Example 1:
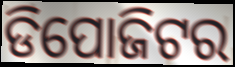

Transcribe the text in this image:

ଡିପୋଜିଟର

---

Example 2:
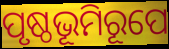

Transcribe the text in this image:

ପୃଷ୍ଠଭୂମିରୂପେ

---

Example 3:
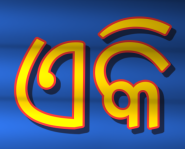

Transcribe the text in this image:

ଏକି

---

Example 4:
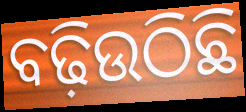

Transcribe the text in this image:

ବଢ଼ିଉଠିଛି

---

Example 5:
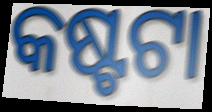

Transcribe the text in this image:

କଷ୍ଟଟା